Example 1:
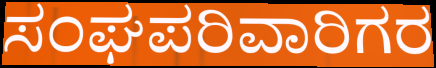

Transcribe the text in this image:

ಸಂಘಪರಿವಾರಿಗರ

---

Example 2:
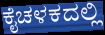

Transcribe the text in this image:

ಕೈಚಳಕದಲ್ಲಿ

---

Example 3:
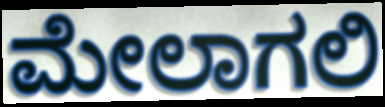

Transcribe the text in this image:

ಮೇಲಾಗಲಿ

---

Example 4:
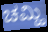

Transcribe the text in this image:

ಚಮ್ಹಿ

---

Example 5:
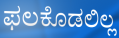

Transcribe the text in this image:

ಫಲಕೊಡಲಿಲ್ಲ